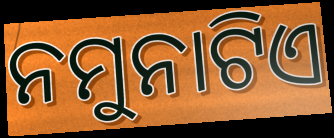
ନମୁନାଟିଏ